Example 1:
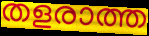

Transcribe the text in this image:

തളരാത്ത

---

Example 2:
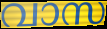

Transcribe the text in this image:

വാസ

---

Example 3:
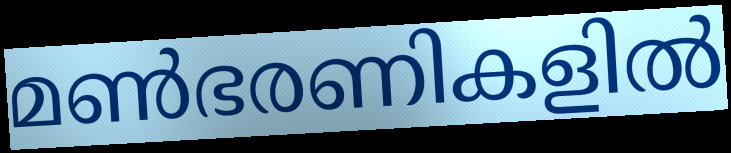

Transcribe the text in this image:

മൺഭരണികളിൽ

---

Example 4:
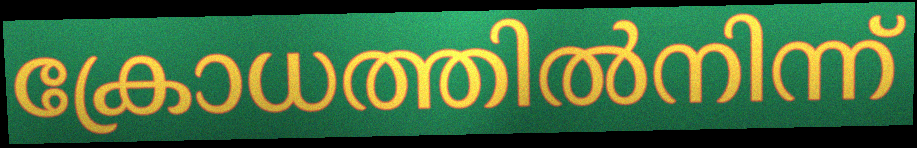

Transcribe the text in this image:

ക്രോധത്തിൽനിന്ന്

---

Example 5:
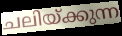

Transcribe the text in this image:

ചലിയ്ക്കുന്ന